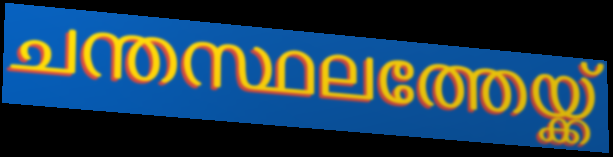
ചന്തസ്ഥലത്തേയ്ക്ക്